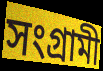
সংগ্ৰামী